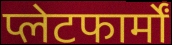
प्लेटफार्मों